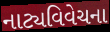
નાટ્યવિવેચના